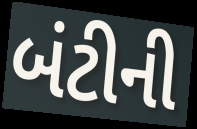
બંટીની